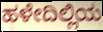
ಹಳೇದಿಲ್ಲಿಯ